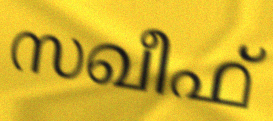
സഖീഫ്